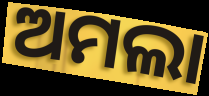
ଅମଲା